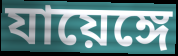
যায়েঙ্গে